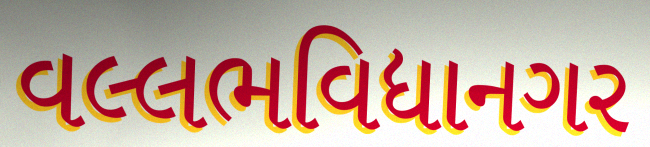
વલ્લભવિદ્યાનગર